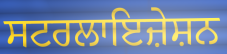
ਸਟਰਲਾਇਜ਼ੇਸ਼ਨ